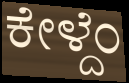
ಕೇಳ್ದೆಂ